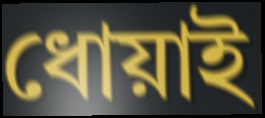
ধোয়াই